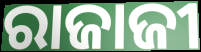
ରାଜାଜୀ